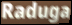
Raduga